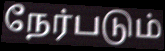
நேர்படும்